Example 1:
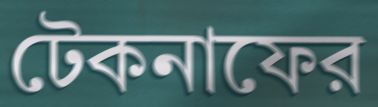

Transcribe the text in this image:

টেকনাফের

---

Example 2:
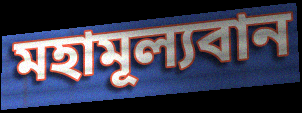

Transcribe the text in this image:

মহামূল্যবান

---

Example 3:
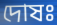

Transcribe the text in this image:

দোষঃ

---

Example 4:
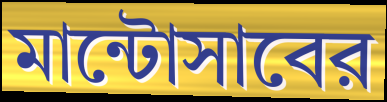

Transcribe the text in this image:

মান্টোসাবের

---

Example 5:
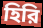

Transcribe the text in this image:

হিরি